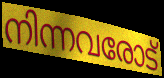
നിന്നവരോട്